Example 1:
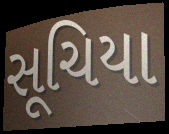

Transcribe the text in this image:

સૂચિયા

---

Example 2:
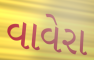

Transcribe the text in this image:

વાવેરા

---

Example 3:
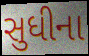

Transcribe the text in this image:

સુધીના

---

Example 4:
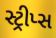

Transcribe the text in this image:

સ્ટ્રીપ્સ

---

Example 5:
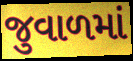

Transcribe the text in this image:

જુવાળમાં